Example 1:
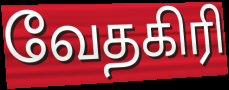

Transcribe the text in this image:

வேதகிரி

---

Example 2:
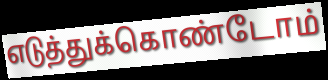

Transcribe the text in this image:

எடுத்துக்கொண்டோம்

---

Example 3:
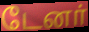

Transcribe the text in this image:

டேனர்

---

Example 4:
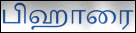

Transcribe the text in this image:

பிஹாரை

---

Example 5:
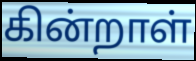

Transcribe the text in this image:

கின்றாள்